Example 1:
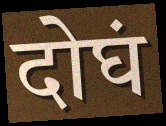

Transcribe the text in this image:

दोघं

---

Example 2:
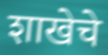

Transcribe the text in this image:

शाखेचे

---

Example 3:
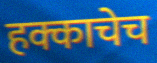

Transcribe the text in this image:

हक्काचेच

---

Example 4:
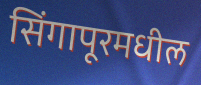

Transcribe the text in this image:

सिंगापूरमधील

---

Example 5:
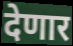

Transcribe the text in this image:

देणार